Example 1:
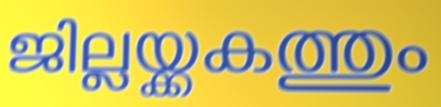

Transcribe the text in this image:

ജില്ലയ്ക്കകത്തും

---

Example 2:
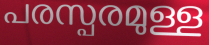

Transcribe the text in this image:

പരസ്പരമുള്ള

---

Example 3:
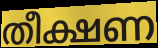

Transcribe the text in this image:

തീക്ഷണ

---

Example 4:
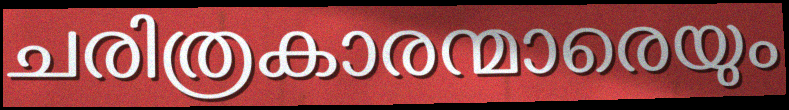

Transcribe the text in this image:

ചരിത്രകാരന്മാരെയും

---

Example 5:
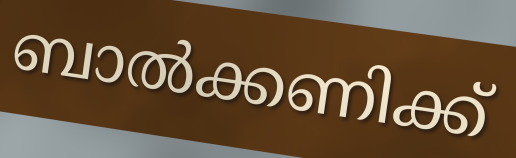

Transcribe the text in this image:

ബാൽക്കണിക്ക്